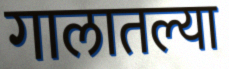
गालातल्या